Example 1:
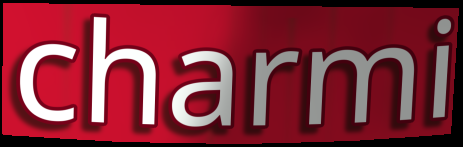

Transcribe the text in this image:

charmi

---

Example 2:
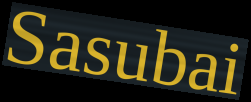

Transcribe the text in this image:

Sasubai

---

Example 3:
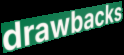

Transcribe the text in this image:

drawbacks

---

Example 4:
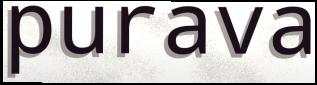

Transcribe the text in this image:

purava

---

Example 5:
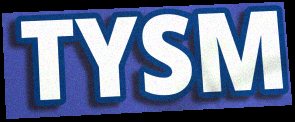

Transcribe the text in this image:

TYSM